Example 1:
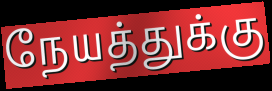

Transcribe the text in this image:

நேயத்துக்கு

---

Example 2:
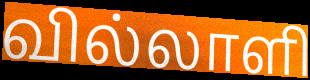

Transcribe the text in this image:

வில்லாளி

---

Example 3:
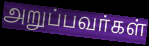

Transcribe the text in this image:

அறுப்பவர்கள்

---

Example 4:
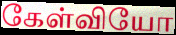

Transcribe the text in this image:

கேள்வியோ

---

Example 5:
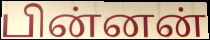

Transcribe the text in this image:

பின்னன்